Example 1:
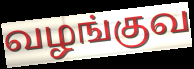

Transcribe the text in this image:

வழங்குவ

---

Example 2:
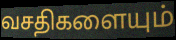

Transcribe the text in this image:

வசதிகளையும்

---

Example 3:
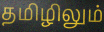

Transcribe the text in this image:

தமிழிலும்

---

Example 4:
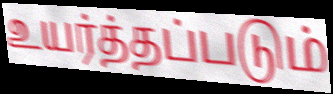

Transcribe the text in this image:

உயர்த்தப்படும்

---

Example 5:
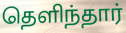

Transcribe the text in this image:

தெளிந்தார்